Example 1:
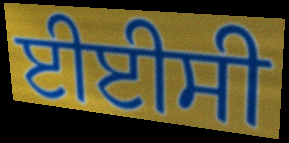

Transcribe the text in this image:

ਈਈਸੀ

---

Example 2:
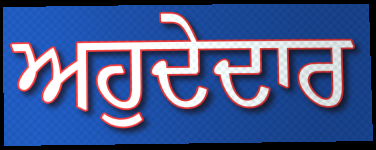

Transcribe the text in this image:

ਅਹੁਦੇਦਾਰ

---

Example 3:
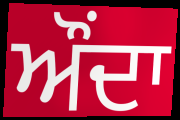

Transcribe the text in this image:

ਔਂਦਾ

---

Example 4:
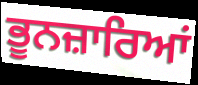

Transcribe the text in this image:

ਭੂਨਜ਼ਾਰਿਆਂ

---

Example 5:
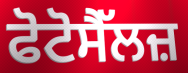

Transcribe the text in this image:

ਫੋਟੋਸੈੱਲਜ਼